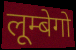
लूम्बेगो